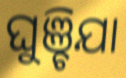
ଘୁଞ୍ଚିଯା